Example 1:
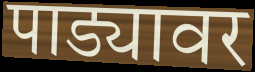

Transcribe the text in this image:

पाड्यावर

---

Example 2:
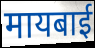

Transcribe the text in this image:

मायबाई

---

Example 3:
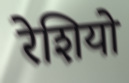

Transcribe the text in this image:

रेशियो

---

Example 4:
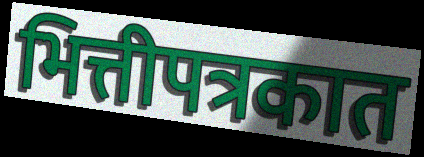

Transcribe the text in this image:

भित्तीपत्रकात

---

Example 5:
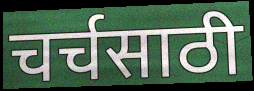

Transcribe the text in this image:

चर्चसाठी